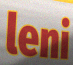
leni